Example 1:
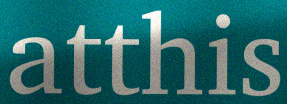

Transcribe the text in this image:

atthis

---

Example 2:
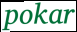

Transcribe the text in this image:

pokar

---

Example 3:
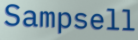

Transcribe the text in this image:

Sampsell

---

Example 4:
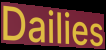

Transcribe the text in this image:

Dailies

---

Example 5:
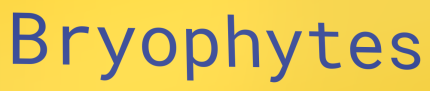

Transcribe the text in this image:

Bryophytes